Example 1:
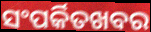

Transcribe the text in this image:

ସଂପର୍କିତଖବର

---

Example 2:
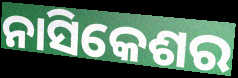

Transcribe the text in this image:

ନାସିକେଶର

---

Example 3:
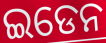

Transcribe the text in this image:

ଇଡେନ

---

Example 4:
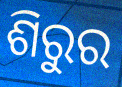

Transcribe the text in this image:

ଶିରୁର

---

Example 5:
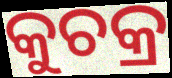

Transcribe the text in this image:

କୁଚକ୍ର